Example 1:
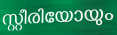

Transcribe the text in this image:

സ്റ്റീരിയോയും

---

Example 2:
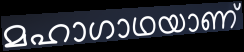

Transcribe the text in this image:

മഹാഗാഥയാണ്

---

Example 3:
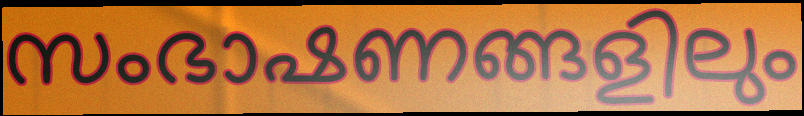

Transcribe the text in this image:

സംഭാഷണങ്ങളിലും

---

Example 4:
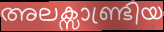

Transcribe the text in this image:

അലക്സാണ്ട്രിയ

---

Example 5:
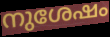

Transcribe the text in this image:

നുശേഷം